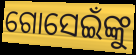
ଗୋସେଇଁଙ୍କୁ